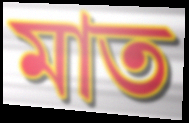
মাত